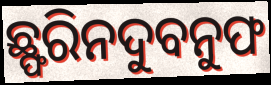
ଛ୍ଫରିନଦୁବନୁଫ